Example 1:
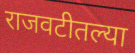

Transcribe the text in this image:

राजवटीतल्या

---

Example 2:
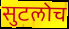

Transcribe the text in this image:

सुटलोच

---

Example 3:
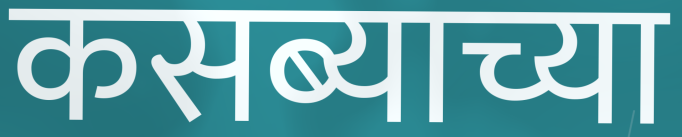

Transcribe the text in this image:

कसब्याच्या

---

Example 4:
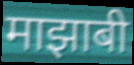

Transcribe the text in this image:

माझाबी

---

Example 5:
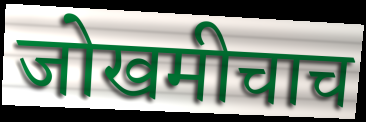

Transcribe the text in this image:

जोखमीचाच